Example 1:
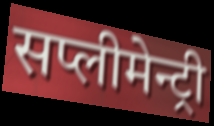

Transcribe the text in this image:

सप्लीमेन्ट्री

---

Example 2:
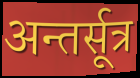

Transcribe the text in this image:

अन्तर्सूत्र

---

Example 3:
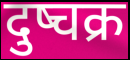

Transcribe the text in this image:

दुष्चक्र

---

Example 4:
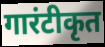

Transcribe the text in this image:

गारंटीकृत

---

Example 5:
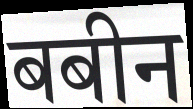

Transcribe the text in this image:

बबीन